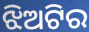
ଝିଅଟିର